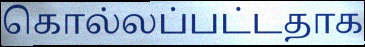
கொல்லப்பட்டதாக